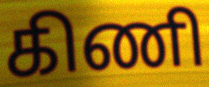
கிணி